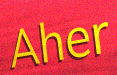
Aher